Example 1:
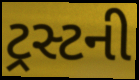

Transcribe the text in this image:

ટ્રસ્ટની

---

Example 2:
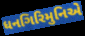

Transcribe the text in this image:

ધનગિરિમુનિએ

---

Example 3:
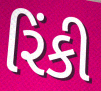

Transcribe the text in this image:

રિંકી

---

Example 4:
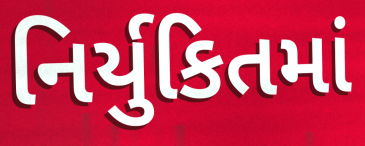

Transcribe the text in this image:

નિર્યુકિતમાં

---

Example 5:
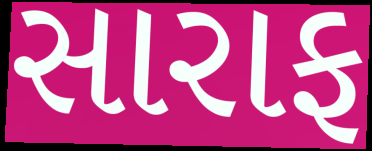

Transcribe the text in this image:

સારાફ